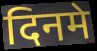
दिनमे